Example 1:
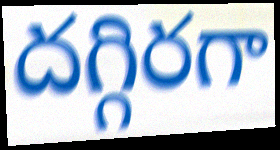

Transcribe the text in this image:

దగ్గిరగా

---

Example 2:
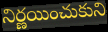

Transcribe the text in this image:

నిర్ణయించుకుని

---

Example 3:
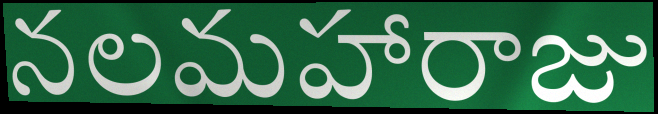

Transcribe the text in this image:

నలమహారాజు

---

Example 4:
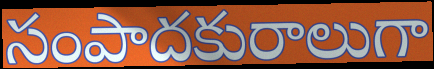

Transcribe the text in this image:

సంపాదకురాలుగా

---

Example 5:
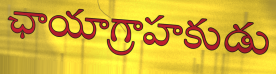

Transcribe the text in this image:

ఛాయాగ్రాహకుడు